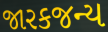
જારકજન્ય